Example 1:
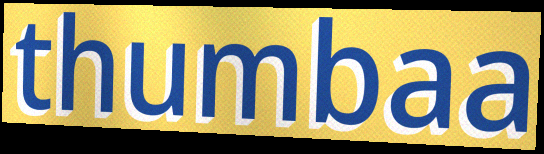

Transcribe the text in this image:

thumbaa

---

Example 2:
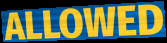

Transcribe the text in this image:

ALLOWED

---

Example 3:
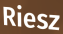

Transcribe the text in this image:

Riesz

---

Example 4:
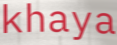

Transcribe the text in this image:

khaya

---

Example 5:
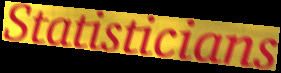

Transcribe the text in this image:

Statisticians